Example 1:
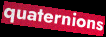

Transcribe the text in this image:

quaternions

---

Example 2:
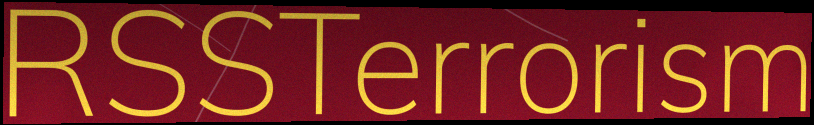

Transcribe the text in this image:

RSSTerrorism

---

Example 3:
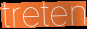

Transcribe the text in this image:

treten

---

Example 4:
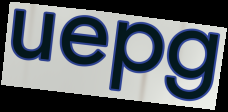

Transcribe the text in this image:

uepg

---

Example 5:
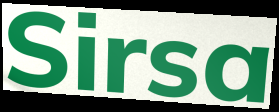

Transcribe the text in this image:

Sirsa